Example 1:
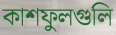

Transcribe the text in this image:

কাশফুলগুলি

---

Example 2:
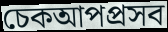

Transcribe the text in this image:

চেকআপপ্রসব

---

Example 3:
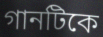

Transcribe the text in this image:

গানটিকে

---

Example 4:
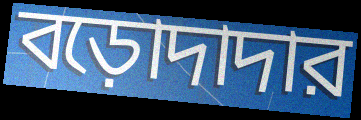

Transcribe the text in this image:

বড়োদাদার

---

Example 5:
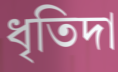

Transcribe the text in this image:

ধৃতিদা